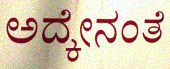
ಅದ್ಕೇನಂತೆ